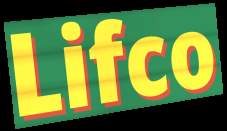
Lifco